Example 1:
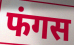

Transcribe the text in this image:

फंगस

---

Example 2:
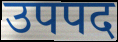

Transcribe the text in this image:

उपपद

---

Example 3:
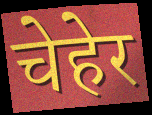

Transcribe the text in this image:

चेहेर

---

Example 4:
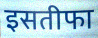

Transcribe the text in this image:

इसतीफा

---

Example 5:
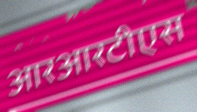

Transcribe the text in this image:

आरआरटीएस